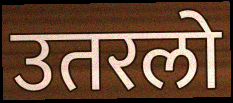
उतरलो